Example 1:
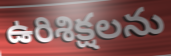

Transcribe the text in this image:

ఉరిశిక్షలను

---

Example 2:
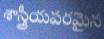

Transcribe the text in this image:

శాస్త్రీయపరమైన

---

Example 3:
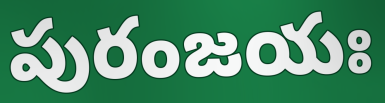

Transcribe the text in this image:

పురంజయః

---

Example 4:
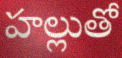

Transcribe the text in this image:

హల్లుతో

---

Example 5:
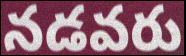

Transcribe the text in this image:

నడవరు